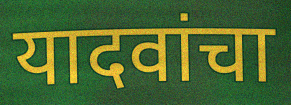
यादवांचा